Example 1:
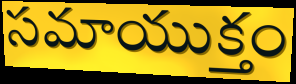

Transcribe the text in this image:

సమాయుక్తం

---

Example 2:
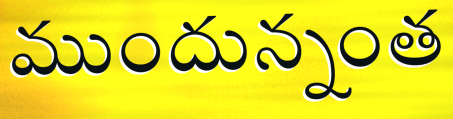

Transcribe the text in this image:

ముందున్నంత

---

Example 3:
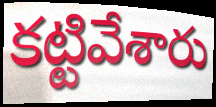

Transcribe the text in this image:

కట్టివేశారు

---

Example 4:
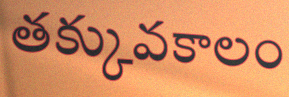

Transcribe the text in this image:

తక్కువకాలం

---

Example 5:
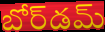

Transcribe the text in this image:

బోర్‌డమ్